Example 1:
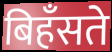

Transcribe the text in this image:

बिहँसते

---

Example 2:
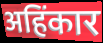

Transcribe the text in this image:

अहिंकार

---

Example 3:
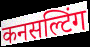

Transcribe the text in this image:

कनसल्टिंग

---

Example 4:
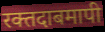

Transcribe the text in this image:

रक्तदाबमापी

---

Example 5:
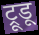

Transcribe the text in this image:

ट्रूडू